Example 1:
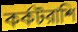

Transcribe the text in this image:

কর্কটরাশি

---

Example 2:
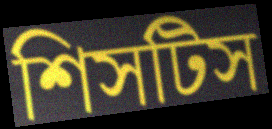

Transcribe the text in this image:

শিসটিস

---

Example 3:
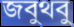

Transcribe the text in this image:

জবুথবু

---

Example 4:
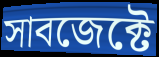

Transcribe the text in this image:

সাবজেক্টে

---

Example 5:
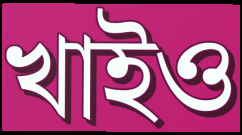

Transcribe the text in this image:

খাইও